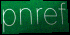
pnref